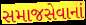
સમાજસેવાનાં